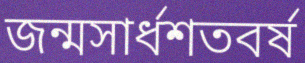
জন্মসার্ধশতবর্ষ